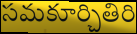
సమకూర్చితిరి